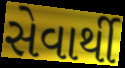
સેવાર્થી